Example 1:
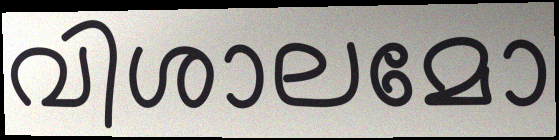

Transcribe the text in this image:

വിശാലമോ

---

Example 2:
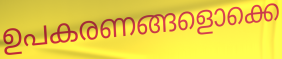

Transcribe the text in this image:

ഉപകരണങ്ങളൊക്കെ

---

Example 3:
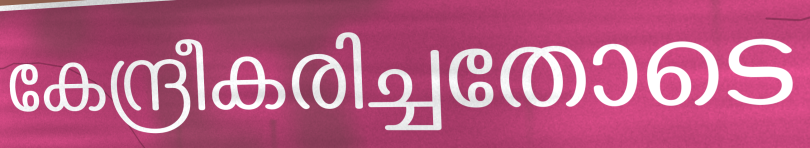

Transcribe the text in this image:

കേന്ദ്രീകരിച്ചതോടെ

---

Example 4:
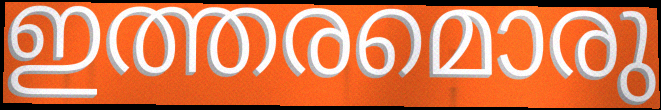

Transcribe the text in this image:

ഇത്തരമൊരു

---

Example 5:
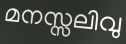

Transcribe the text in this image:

മനസ്സലിവു